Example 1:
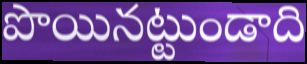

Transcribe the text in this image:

పొయినట్టుండాది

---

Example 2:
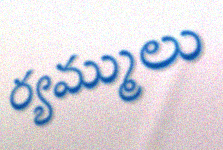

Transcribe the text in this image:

ర్యమ్ములు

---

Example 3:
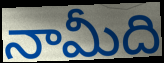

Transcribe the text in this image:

నామీది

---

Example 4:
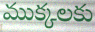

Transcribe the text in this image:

ముక్కలకు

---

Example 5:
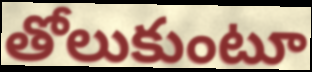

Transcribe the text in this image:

తోలుకుంటూ